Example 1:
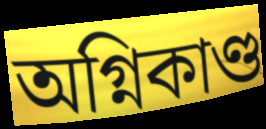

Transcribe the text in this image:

অগ্নিকাণ্ড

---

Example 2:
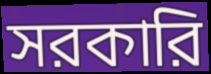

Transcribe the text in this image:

সরকারি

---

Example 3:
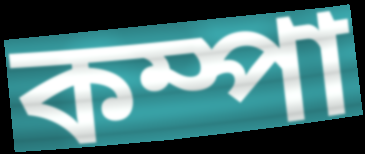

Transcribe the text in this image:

কম্পা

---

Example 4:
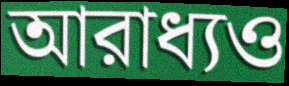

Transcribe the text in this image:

আরাধ্যও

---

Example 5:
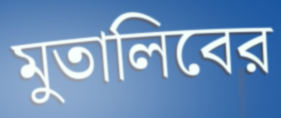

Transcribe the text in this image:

মুতালিবের